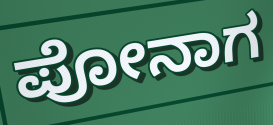
ಪೋನಾಗ